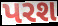
પરશ